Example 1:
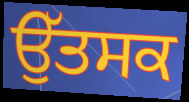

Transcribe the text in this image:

ਉੱਤਸਕ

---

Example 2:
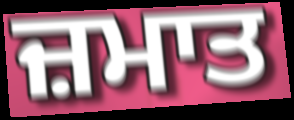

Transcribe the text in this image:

ਜ਼ਮਾਤ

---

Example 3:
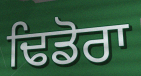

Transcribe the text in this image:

ਢਿਡੋਰਾ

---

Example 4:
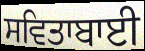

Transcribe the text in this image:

ਸਵਿਤਾਬਾਈ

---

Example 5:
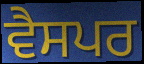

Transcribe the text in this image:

ਵੈਸਪਰ